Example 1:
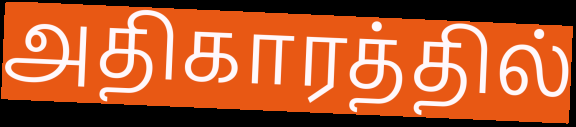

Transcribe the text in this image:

அதிகாரத்தில்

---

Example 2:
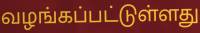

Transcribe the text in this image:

வழங்கப்பட்டுள்ளது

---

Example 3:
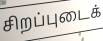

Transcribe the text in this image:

சிறப்புடைக்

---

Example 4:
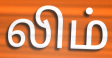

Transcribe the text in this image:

லிம்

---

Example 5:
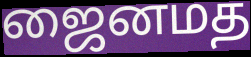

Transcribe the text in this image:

ஜைனமத